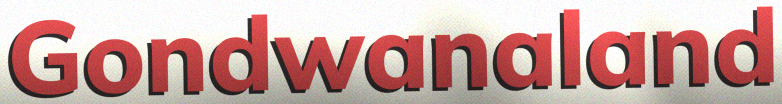
Gondwanaland